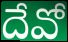
దేవో